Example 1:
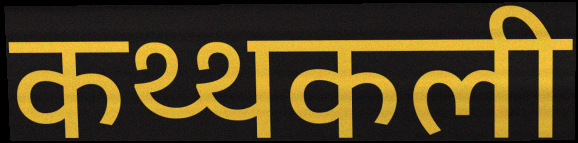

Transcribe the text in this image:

कथ्थकली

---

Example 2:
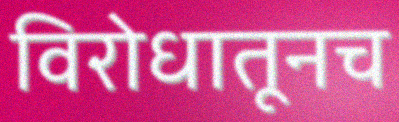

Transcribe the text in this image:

विरोधातूनच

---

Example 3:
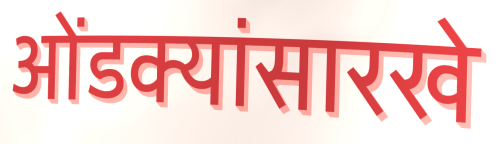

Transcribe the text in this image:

ओंडक्यांसारखे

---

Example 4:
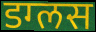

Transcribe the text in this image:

डग्लस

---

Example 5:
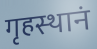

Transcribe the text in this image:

गृहस्थानं